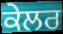
ਕੇਲਰ